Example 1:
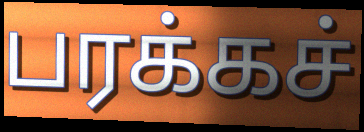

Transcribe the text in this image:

பரக்கச்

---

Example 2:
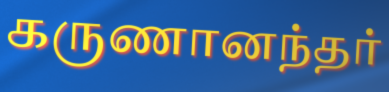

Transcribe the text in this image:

கருணானந்தர்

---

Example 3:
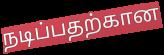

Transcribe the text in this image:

நடிப்பதற்கான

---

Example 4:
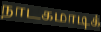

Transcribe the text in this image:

நாடகமாடிக்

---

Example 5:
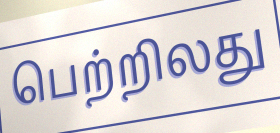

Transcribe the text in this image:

பெற்றிலது